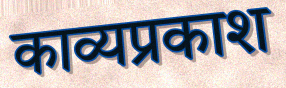
काव्यप्रकाश